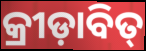
କ୍ରୀଡ଼ାବିତ୍